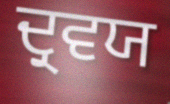
ਦ੍ਰਵਯ